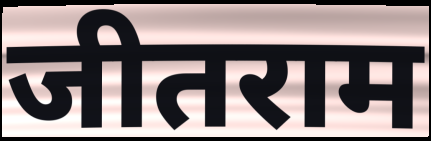
जीतराम